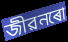
জীৱনৰো